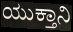
ಯುಕ್ತಾನಿ